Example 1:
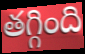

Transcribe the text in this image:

తగ్గింది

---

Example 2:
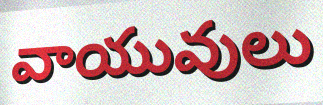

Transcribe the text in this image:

వాయువులు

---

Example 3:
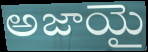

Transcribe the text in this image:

అజాయై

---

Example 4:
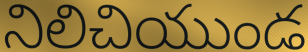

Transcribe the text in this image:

నిలిచియుండ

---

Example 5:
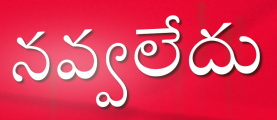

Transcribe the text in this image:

నవ్వలేదు